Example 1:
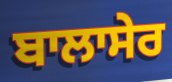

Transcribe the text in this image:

ਬਾਲਾਸੇਰ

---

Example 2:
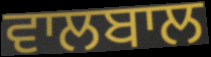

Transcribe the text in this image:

ਵਾਲਬਾਲ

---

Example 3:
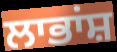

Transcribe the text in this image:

ਲਾਭਾਂਸ਼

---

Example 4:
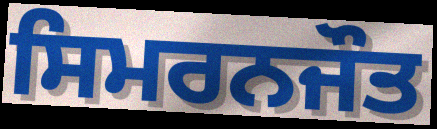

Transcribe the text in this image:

ਸਿਮਰਨਜੌਤ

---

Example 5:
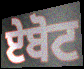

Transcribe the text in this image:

ਏਬੋਟ